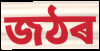
জঠৰ